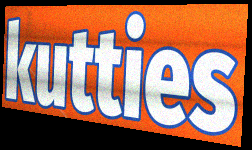
kutties